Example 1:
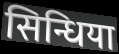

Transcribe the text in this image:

सिन्धिया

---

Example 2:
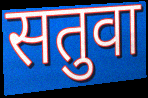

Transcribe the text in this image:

सतुवा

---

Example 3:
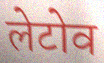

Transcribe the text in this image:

लेटोव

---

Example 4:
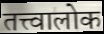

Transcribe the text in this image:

तत्त्वालोक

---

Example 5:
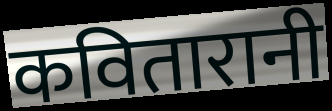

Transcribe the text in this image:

कवितारानी